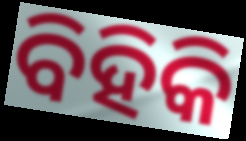
ବିହିକି